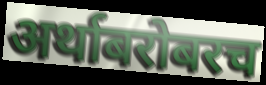
अर्थाबरोबरच